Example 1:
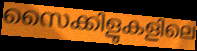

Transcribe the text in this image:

സൈക്കിളുകളിലെ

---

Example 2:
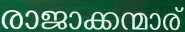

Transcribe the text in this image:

രാജാക്കന്മാര്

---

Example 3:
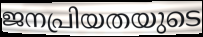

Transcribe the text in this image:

ജനപ്രിയതയുടെ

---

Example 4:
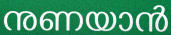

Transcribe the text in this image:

നുണയാൻ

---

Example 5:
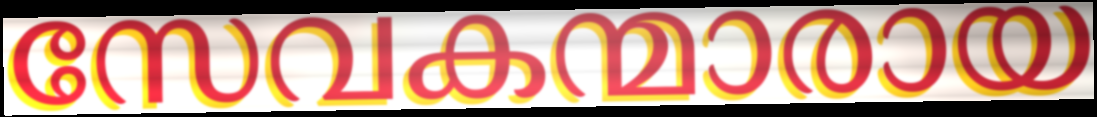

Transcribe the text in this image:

സേവകന്മാരായ